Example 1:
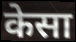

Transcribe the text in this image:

केसा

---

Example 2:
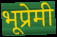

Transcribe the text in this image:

भूप्रेमी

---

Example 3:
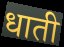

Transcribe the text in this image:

धाती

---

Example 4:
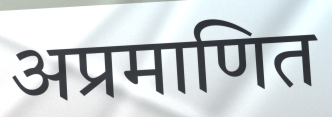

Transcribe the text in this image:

अप्रमाणित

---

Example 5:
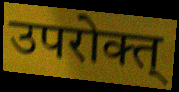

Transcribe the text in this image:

उपरोक्त्